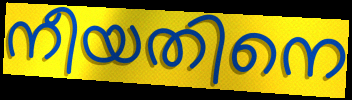
നീയതിനെ